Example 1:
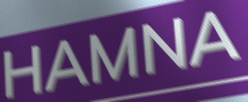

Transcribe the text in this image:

HAMNA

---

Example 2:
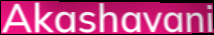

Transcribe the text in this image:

Akashavani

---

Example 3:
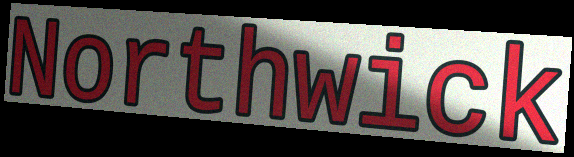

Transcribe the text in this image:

Northwick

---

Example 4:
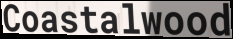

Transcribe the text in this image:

Coastalwood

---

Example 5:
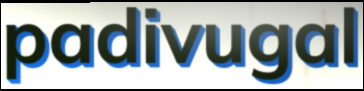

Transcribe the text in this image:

padivugal